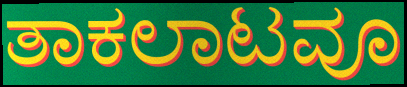
ತಾಕಲಾಟವೂ